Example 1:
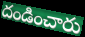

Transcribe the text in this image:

దండించారు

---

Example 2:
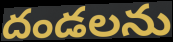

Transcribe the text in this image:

దండలను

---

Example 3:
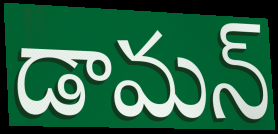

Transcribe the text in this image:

డామన్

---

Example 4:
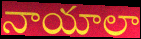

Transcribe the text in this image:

నాయాలా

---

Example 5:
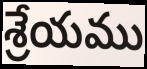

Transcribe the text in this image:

శ్రేయము